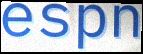
espn